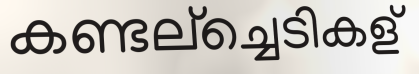
കണ്ടല്ച്ചെടികള്